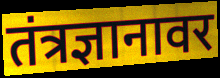
तंत्रज्ञानावर